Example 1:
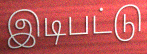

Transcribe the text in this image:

இடிபட்டு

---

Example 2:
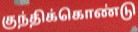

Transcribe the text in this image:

குந்திக்கொண்டு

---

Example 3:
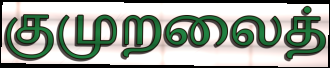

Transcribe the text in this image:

குமுறலைத்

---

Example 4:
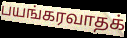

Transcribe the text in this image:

பயங்கரவாதக்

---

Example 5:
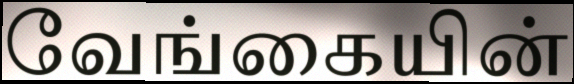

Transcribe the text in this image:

வேங்கையின்